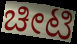
ಚೀಟಿ